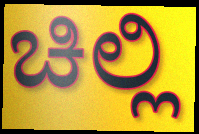
ಚಿಲ್ಲಿ